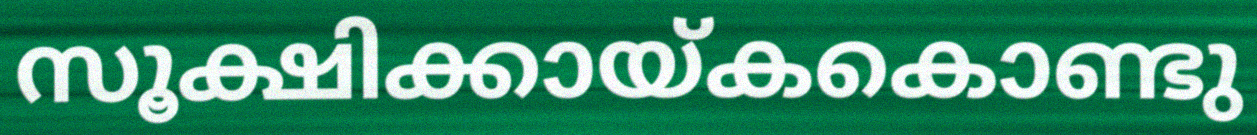
സൂക്ഷിക്കായ്കകൊണ്ടു